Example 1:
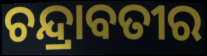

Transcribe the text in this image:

ଚନ୍ଦ୍ରାବତୀର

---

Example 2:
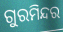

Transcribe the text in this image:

ଗୁରମିନ୍ଦର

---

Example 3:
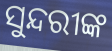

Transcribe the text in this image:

ସୁନ୍ଦରୀଙ୍କ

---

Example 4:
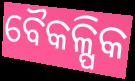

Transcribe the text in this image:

ବୈକଳ୍ପିକ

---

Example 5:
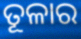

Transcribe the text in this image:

ତୂଳାର